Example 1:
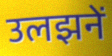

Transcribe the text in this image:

उलझनें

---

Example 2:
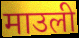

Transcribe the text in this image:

माउली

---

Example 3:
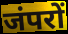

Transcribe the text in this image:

जंपरों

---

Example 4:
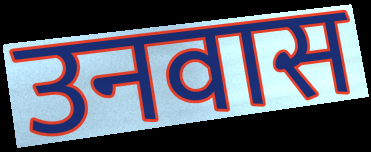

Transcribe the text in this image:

उनवास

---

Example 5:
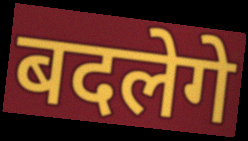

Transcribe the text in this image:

बदलेगे